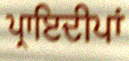
ਪ੍ਰਾਇਦੀਪਾਂ